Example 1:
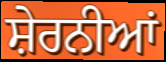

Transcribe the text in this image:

ਸ਼ੇਰਨੀਆਂ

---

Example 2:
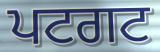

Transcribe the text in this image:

ਪਟਗਟ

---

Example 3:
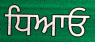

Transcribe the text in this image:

ਧਿਆਓ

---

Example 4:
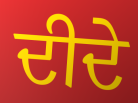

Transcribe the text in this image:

ਦੀਦੇ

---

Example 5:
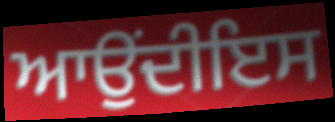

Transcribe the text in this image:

ਆਉਂਦੀਇਸ